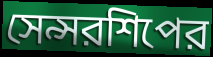
সেন্সরশিপের